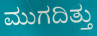
ಮುಗದಿತ್ತು